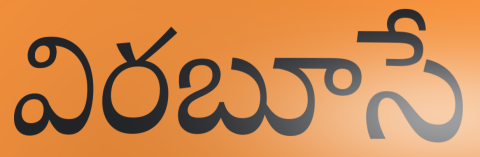
విరబూసే